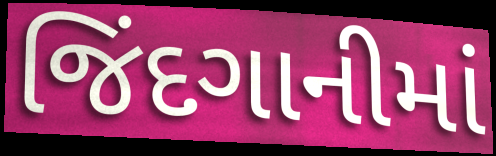
જિંદગાનીમાં